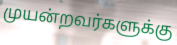
முயன்றவர்களுக்கு